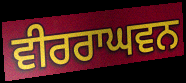
ਵੀਰਰਾਘਵਨ